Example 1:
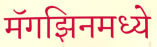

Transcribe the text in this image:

मॅगझिनमध्ये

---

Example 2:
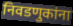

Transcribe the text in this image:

निवडणुकांना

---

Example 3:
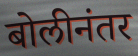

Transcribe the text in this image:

बोलीनंतर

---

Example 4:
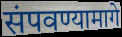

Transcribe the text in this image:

संपवण्यामागे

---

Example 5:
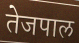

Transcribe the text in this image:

तेजपाल